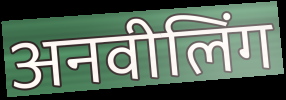
अनवीलिंग